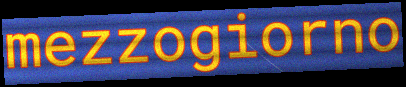
mezzogiorno